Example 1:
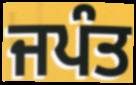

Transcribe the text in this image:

ਜਪੰਤ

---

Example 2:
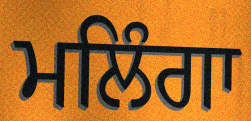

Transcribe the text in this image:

ਮਲਿੰਗਾ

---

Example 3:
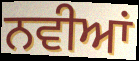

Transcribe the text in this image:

ਨਵੀਆਂ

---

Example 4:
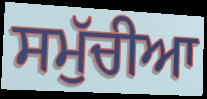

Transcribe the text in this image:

ਸਮੁੱਚੀਆ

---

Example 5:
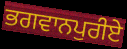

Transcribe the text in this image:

ਭਗਵਾਨਪੁਰੀਏ